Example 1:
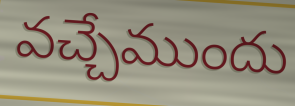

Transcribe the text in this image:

వచ్చేముందు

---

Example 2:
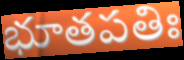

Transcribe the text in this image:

భూతపతిః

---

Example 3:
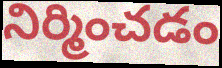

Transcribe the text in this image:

నిర్మించడం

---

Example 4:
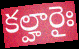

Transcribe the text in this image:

కల్హారైః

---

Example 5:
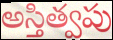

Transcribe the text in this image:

అస్తిత్వపు